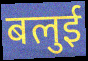
बलुई